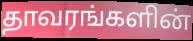
தாவரங்களின்